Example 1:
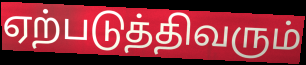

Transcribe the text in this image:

ஏற்படுத்திவரும்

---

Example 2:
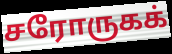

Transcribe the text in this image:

சரோருகக்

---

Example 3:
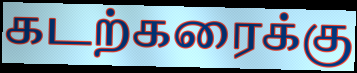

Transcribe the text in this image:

கடற்கரைக்கு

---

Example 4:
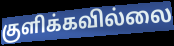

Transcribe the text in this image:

குளிக்கவில்லை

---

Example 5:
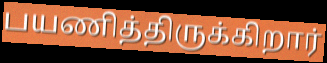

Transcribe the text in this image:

பயணித்திருக்கிறார்